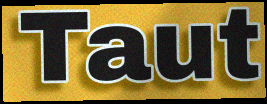
Taut